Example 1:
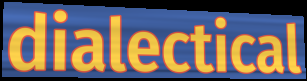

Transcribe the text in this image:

dialectical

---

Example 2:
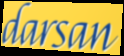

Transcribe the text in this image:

darsan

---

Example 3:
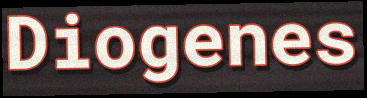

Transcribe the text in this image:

Diogenes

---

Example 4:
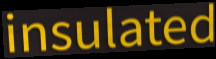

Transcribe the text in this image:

insulated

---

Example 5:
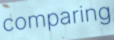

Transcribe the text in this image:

comparing